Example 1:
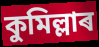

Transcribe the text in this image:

কুমিল্লাৰ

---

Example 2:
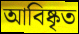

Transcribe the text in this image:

আবিষ্কৃত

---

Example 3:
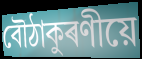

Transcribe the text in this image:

বৌঠাকুৰণীয়ে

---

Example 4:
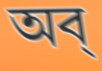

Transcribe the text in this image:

অব্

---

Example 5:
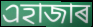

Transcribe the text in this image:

এহাজাৰ